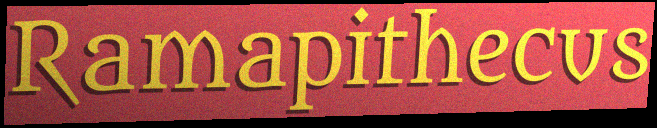
Ramapithecus